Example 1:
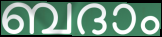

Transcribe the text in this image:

ബദാം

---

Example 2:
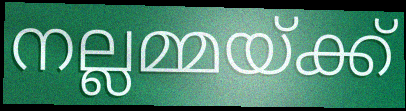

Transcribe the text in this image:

നല്ലമ്മയ്ക്ക്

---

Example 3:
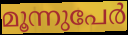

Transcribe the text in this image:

മൂന്നുപേർ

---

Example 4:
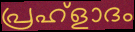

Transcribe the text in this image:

പ്രഹ്ളാദം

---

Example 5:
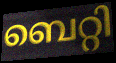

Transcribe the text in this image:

ബെറ്റി